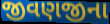
જીવણજીના